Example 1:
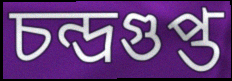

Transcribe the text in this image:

চন্দ্রগুপ্ত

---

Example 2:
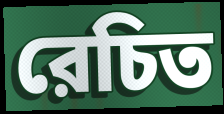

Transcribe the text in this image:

রেচিত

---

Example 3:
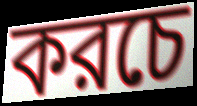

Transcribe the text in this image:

করচে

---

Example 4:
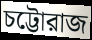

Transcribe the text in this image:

চট্টোরাজ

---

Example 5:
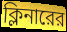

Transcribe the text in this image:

ক্লিনারের